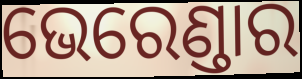
ଭେରେଣ୍ଡାର